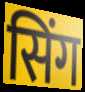
सिंग